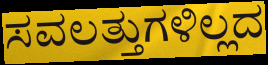
ಸವಲತ್ತುಗಳಿಲ್ಲದ